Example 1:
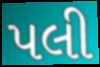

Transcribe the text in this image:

પલી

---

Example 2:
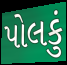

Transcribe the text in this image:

પોલકું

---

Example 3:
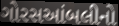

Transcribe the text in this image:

ગોરસઆંબલીનો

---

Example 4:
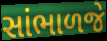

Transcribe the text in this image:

સાંભાળજે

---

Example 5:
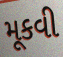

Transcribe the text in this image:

મૂકવી